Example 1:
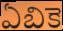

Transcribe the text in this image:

ఏబికె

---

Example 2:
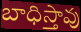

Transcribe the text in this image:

బాధిస్తావు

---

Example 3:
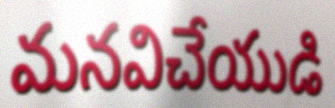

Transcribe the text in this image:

మనవిచేయుడి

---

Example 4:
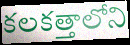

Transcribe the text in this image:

కలకత్తాలోని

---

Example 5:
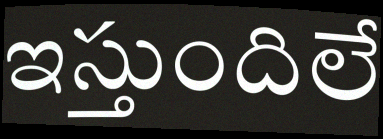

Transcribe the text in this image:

ఇస్తుందిలే